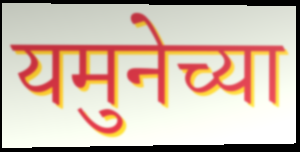
यमुनेच्या